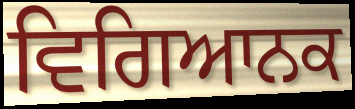
ਵਿਗਿਆਨਕ